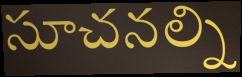
సూచనల్ని